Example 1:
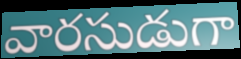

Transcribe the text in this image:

వారసుడుగా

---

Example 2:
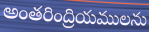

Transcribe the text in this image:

అంతరింద్రియములను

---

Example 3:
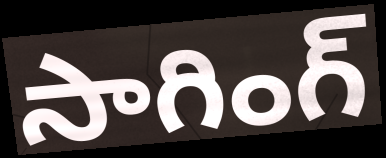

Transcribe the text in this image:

సాగింగ్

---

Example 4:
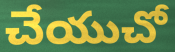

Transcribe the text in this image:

చేయుచో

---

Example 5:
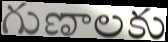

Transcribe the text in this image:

గుణాలకు